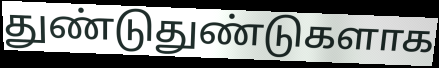
துண்டுதுண்டுகளாக